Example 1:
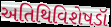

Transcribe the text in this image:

અતિથિવિશેષડૉ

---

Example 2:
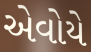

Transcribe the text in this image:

એવોયે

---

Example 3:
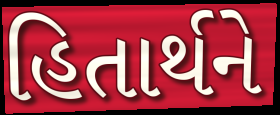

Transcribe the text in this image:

હિતાર્થને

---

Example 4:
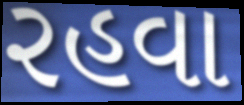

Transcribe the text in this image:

રહવા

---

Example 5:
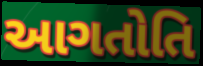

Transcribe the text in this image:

આગતોતિ